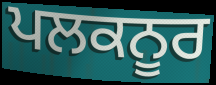
ਪਲਕਨੂਰ